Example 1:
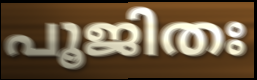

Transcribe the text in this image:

പൂജിതഃ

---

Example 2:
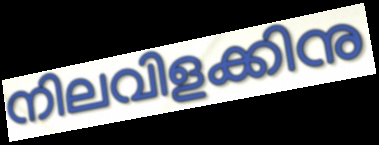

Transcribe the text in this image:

നിലവിളക്കിനു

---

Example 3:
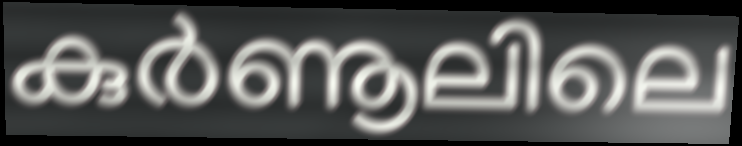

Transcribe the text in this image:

കുർണൂലിലെ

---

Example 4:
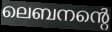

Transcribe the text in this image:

ലെബനന്റെ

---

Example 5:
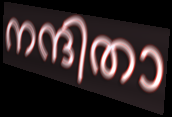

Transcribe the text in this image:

നന്ദിതാ